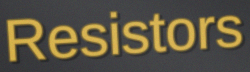
Resistors